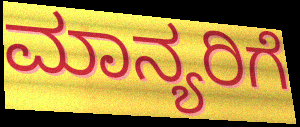
ಮಾನ್ಯರಿಗೆ